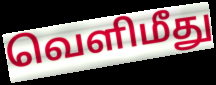
வெளிமீது